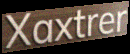
Xaxtrer